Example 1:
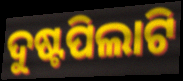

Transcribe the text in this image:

ଦୁଷ୍ଟପିଲାଟି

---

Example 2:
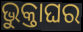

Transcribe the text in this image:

ଭୁକ୍ତାଘର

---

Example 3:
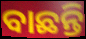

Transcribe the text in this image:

ବାଛନ୍ତି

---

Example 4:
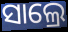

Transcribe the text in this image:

ସାଲ୍ରେ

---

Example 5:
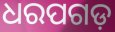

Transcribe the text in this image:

ଧରପଗଡ଼